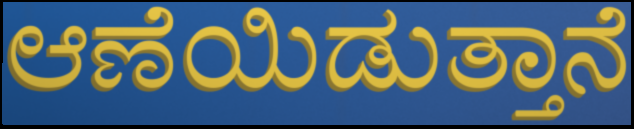
ಆಣೆಯಿಡುತ್ತಾನೆ